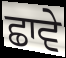
ਛਾਵੇ